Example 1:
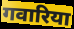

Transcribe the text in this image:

गवारिया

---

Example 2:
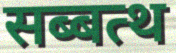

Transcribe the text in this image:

सब्बत्थ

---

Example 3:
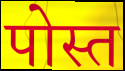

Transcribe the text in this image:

पोस्त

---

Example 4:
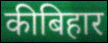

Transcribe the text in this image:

कीबिहार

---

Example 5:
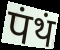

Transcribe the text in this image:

पंथं